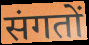
संगतों